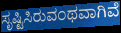
ಸೃಷ್ಟಿಸಿರುವಂಥವಾಗಿವೆ